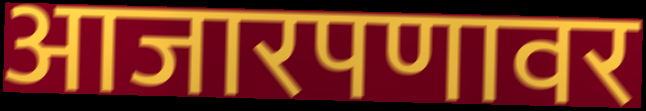
आजारपणावर